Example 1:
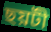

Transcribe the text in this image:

ছয়টী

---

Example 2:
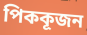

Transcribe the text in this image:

পিককূজন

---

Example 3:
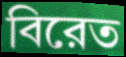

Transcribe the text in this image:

বিরেত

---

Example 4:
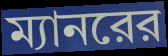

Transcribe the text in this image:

ম্যানরের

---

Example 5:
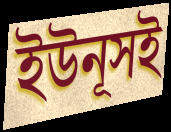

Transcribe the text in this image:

ইউনূসই